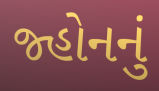
જ્હોનનું